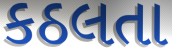
કઠલતા